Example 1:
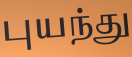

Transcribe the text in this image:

புயந்து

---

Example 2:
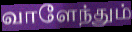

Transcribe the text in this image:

வாளேந்தும்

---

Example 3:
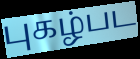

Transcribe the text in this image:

புகழ்பட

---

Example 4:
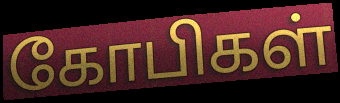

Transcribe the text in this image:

கோபிகள்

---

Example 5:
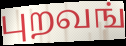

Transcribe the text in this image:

புறவங்